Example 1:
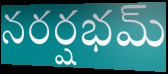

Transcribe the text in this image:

నరర్షభమ్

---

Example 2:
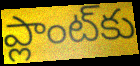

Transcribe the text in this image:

ప్లాంట్‌కు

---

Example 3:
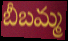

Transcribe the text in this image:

బీబమ్మ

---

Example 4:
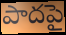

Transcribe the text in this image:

పాదపై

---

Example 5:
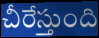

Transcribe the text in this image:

చీరేస్తుంది